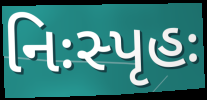
નિઃસ્પૃહઃ